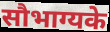
सौभाग्यके